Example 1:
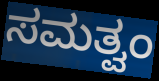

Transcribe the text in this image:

ಸಮತ್ವಂ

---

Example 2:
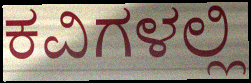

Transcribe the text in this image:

ಕವಿಗಳಲ್ಲಿ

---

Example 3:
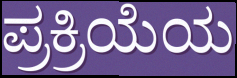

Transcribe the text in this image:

ಪ್ರಕ್ರಿಯೆಯ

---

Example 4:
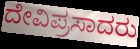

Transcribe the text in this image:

ದೇವಿಪ್ರಸಾದರು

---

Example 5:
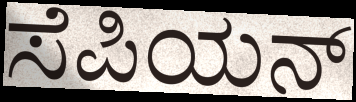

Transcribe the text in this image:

ಸೆಪಿಯನ್